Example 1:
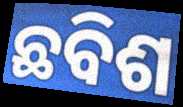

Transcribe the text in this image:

ଛବିଶ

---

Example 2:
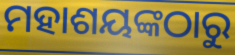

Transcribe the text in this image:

ମହାଶୟଙ୍କଠାରୁ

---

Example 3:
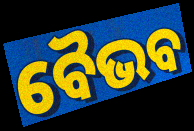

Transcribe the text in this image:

ବୈଭବ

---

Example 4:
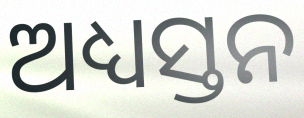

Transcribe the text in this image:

ଅଧ୍ୟସ୍ତନ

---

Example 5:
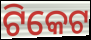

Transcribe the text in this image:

ଟିକେଟ